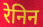
रेनिन